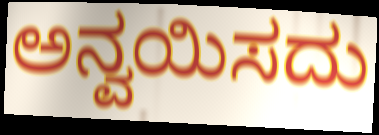
ಅನ್ವಯಿಸದು